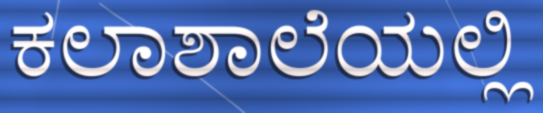
ಕಲಾಶಾಲೆಯಲ್ಲಿ